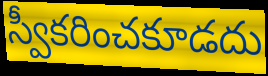
స్వీకరించకూడదు